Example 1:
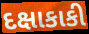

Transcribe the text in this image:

દક્ષાકાકી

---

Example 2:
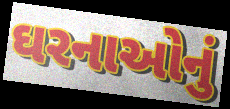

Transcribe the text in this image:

ઘરનાઓનું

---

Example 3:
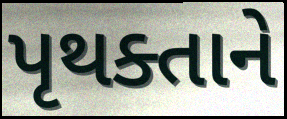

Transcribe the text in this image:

પૃથક્તાને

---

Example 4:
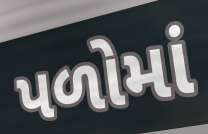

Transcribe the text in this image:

પળોમાં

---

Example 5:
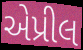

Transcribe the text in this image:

એપ્રીલ